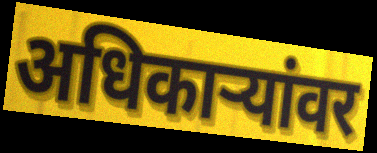
अधिकाऱ्यांवर